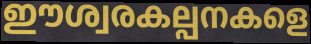
ഈശ്വരകല്പനകളെ